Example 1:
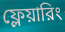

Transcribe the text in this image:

ফ্লেয়ারিং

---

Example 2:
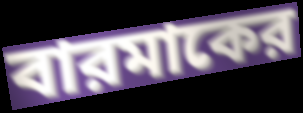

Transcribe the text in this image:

বারমাকের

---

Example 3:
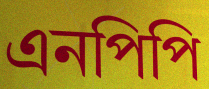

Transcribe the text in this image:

এনপিপি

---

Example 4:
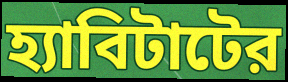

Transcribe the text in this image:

হ্যাবিটাটের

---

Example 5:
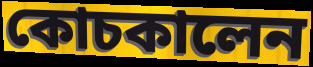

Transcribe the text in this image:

কোচকালেন